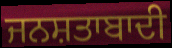
ਜਨਸ਼ਤਾਬਾਦੀ